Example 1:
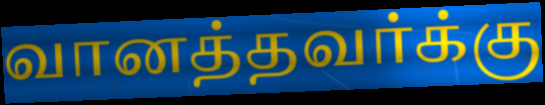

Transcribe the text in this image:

வானத்தவர்க்கு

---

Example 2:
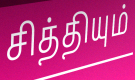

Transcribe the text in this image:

சித்தியும்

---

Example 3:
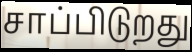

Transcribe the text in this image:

சாப்பிடுறது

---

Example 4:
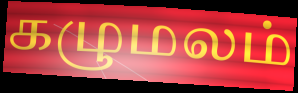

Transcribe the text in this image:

கழுமலம்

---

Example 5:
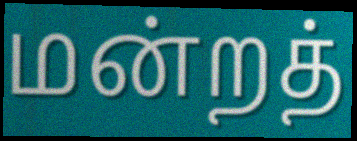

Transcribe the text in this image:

மன்றத்